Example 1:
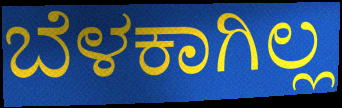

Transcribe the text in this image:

ಬೆಳಕಾಗಿಲ್ಲ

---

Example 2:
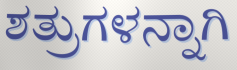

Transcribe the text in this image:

ಶತ್ರುಗಳನ್ನಾಗಿ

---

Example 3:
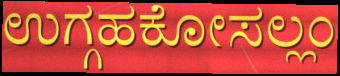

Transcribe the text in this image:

ಉಗ್ಗಹಕೋಸಲ್ಲಂ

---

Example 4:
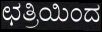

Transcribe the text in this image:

ಛತ್ರಿಯಿಂದ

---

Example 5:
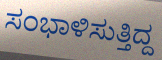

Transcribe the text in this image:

ಸಂಭಾಳಿಸುತ್ತಿದ್ದ